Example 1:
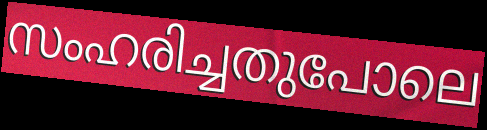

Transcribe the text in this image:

സംഹരിച്ചതുപോലെ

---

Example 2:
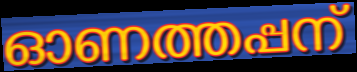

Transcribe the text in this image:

ഓണത്തപ്പന്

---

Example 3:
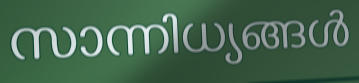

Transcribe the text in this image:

സാന്നിധ്യങ്ങൾ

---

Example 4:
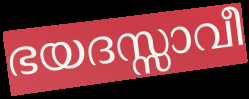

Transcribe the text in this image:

ഭയദസ്സാവീ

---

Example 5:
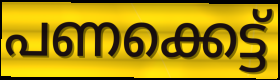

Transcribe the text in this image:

പണക്കെട്ട്